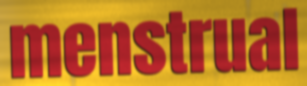
menstrual